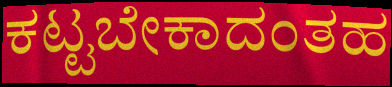
ಕಟ್ಟಬೇಕಾದಂತಹ